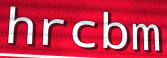
hrcbm